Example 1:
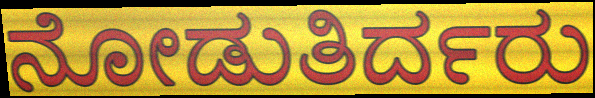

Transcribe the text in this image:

ನೋಡುತಿರ್ದರು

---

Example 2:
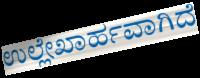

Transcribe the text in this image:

ಉಲ್ಲೇಖಾರ್ಹವಾಗಿದೆ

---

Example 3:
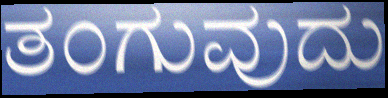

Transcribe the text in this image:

ತಂಗುವುದು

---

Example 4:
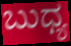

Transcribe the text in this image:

ಬುಧ್ಯ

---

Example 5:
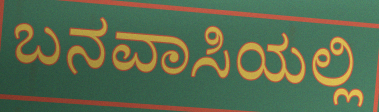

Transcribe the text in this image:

ಬನವಾಸಿಯಲ್ಲಿ